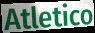
Atletico